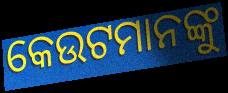
କେଉଟମାନଙ୍କୁ